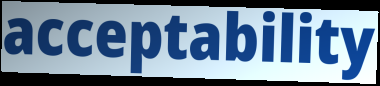
acceptability